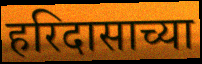
हरिदासाच्या